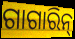
ଗାଗାରିନ୍